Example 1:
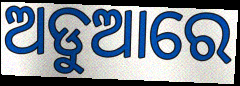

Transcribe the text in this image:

ଅଡୁଆରେ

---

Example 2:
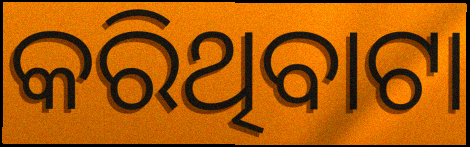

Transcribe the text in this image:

କରିଥିବାଟା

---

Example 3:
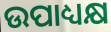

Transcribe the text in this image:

ଉପାଧ୍ୟକ୍ଷ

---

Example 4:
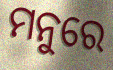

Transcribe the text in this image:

ମନୁରେ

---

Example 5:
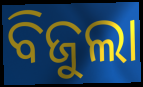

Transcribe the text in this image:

ବିଜୁଲା